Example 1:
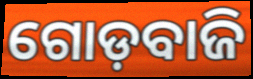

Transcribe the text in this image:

ଗୋଡ଼ବାଜି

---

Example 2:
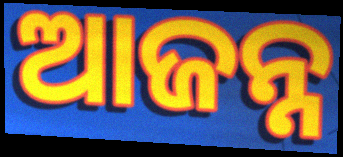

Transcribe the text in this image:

ଆଜନ୍ନ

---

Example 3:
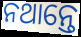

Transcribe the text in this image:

ନଥାନ୍ତେ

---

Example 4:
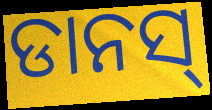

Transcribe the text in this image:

ଡାନସ୍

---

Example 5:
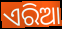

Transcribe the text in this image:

ଏରିଆ